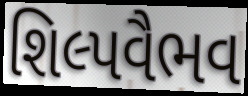
શિલ્પવૈભવ